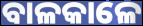
ବାଳକାଳେ